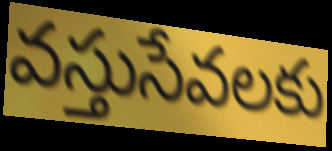
వస్తుసేవలకు